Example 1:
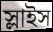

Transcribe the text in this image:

স্লাইস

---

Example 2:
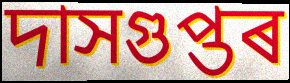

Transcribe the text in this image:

দাসগুপ্তৰ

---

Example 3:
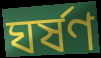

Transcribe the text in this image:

ঘৰ্ষণ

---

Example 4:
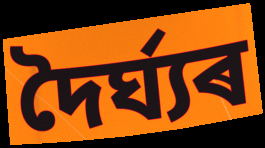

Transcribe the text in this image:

দৈৰ্ঘ্যৰ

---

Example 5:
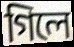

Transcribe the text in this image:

গিলে